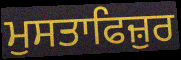
ਮੁਸਤਾਫਿਜ਼ੁਰ